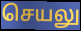
செயலு